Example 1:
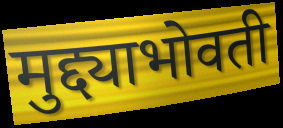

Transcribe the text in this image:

मुद्द्याभोवती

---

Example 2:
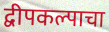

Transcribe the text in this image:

द्वीपकल्पाचा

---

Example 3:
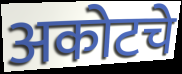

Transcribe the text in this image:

अकोटचे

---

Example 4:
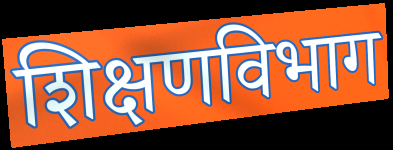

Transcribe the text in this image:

शिक्षणविभाग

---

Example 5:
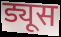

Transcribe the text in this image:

ड्यूस